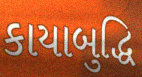
કાયાબુદ્ધિ